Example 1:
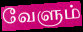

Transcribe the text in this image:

வேளும்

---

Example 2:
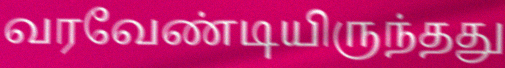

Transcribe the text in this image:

வரவேண்டியிருந்தது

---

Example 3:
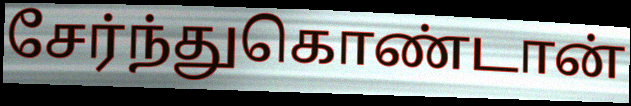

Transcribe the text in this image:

சேர்ந்துகொண்டான்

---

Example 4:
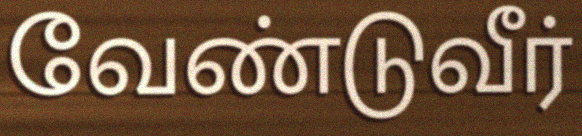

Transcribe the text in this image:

வேண்டுவீர்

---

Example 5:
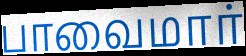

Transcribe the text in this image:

பாவைமார்